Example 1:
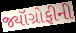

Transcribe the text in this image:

જ્યૉગ્રોફીની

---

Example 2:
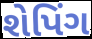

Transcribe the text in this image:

શેપિંગ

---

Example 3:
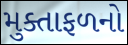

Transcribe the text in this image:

મુક્તાફળનો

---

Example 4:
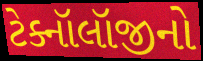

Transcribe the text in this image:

ટેક્નૉલૉજીનો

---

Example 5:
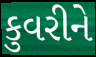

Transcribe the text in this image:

કુવરીને